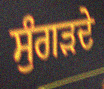
ਸੁੰਗੜਦੇ